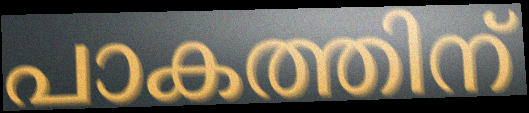
പാകത്തിന്